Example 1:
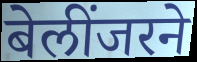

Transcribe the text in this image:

बेलींजरने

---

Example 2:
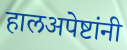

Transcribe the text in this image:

हालअपेष्टांनी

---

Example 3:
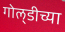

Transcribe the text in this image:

गोल्डीच्या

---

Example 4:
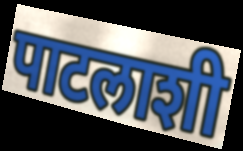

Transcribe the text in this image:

पाटलाशी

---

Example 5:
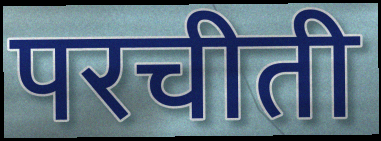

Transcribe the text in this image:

परचीती